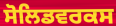
ਸੋਲਿਡਵਰਕਸ